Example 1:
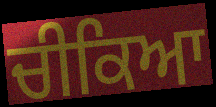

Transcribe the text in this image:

ਚੀਕਿਆ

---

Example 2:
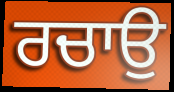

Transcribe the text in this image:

ਰਚਾਉ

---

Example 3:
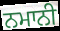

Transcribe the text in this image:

ਨਮਾਨੀ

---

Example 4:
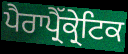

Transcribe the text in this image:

ਪੈਰਾਪ੍ਰੈੱਕ੍ਰੇਟਿਕ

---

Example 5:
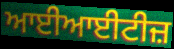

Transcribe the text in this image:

ਆਈਆਈਟੀਜ਼